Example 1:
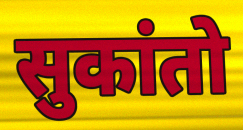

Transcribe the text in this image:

सुकांतो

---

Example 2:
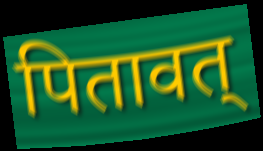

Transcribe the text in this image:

पितावत्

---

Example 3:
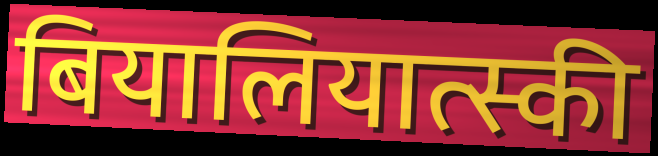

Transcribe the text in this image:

बियालियात्स्की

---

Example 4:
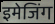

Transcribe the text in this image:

इमेजिंग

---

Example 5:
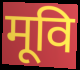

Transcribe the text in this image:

मूवि